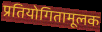
प्रतियोगितामूलक